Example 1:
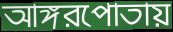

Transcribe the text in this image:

আঙ্গরপোতায়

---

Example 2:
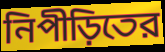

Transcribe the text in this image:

নিপীড়িতের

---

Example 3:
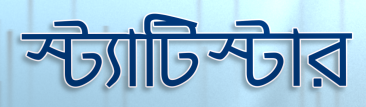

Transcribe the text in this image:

স্ট্যাটিস্টার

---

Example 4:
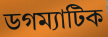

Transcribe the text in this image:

ডগম্যাটিক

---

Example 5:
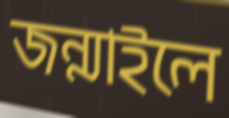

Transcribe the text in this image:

জন্মাইলে